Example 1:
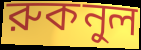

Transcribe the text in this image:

রুকনুল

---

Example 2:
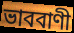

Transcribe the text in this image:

ভাববাণী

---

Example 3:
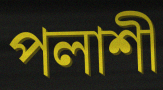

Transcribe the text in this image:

পলাশী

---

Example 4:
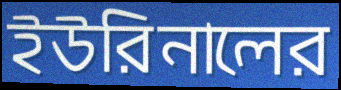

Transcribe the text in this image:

ইউরিনালের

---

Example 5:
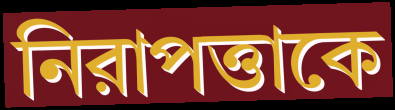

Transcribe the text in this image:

নিরাপত্তাকে